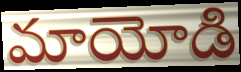
మాయోడి